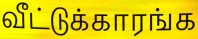
வீட்டுக்காரங்க